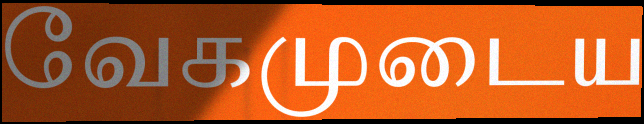
வேகமுடைய